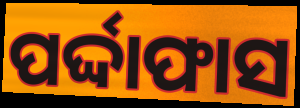
ପର୍ଦ୍ଦାଫାସ